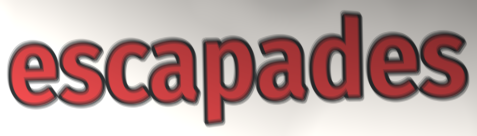
escapades